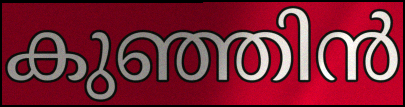
കുഞ്ഞിൻ